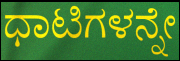
ಧಾಟಿಗಳನ್ನೇ